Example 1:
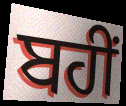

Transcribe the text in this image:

ਬਹੀਂ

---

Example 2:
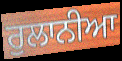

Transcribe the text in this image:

ਰੁਲਾਨੀਆ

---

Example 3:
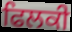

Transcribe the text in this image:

ਫਿਲਕੀ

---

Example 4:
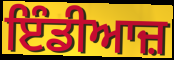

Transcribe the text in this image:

ਇੰਡੀਆਜ਼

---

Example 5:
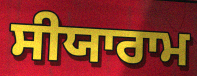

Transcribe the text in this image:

ਸੀਯਾਰਾਮ